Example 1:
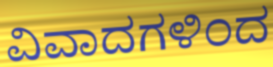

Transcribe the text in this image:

ವಿವಾದಗಳಿಂದ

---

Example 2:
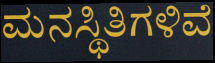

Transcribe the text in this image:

ಮನಸ್ಥಿತಿಗಳಿವೆ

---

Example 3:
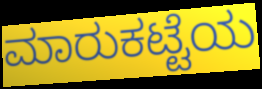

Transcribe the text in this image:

ಮಾರುಕಟ್ಟೆಯ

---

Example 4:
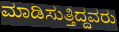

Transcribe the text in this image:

ಮಾಡಿಸುತ್ತಿದ್ದವರು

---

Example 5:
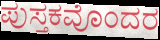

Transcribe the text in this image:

ಪುಸ್ತಕವೊಂದರ